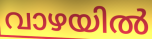
വാഴയിൽ